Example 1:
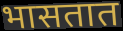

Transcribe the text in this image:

भासतात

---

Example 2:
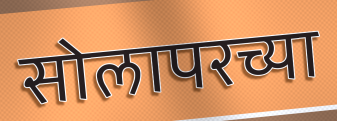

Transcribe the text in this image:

सोलापरच्या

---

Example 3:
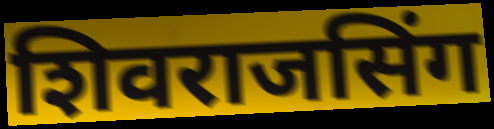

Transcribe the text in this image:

शिवराजसिंग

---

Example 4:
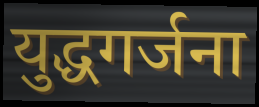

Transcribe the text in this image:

युद्धगर्जना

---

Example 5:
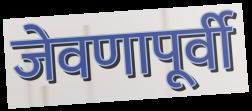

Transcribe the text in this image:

जेवणापूर्वी